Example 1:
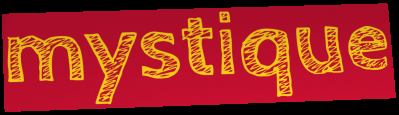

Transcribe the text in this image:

mystique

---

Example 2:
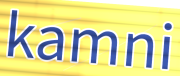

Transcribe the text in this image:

kamni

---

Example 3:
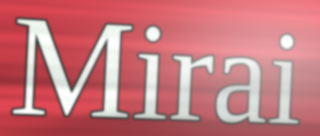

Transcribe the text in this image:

Mirai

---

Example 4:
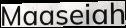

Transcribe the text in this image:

Maaseiah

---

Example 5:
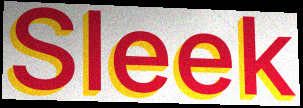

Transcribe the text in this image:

Sleek